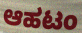
ಆಹಟಂ